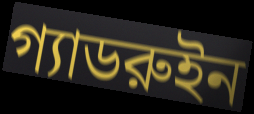
গ্যাডরুইন